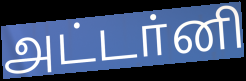
அட்டர்னி